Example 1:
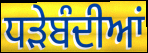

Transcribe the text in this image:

ਧੜੇਬੰਦੀਆਂ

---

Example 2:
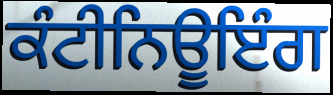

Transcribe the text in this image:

ਕੰਟੀਨਿਊਇੰਗ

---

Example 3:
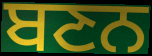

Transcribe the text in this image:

ਬਣਨ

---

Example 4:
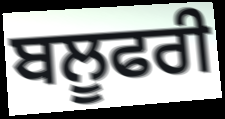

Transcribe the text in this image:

ਬਲੂਫਰੀ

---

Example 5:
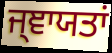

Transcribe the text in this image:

ਜ੍ਞਾਯਤਾਂ